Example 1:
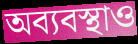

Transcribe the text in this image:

অব্যবস্থাও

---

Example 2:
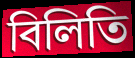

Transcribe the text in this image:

বিলিতি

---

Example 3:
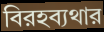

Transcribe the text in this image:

বিরহব্যথার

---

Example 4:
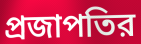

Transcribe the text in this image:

প্রজাপতির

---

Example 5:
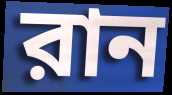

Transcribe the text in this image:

রান